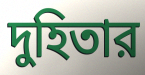
দুহিতার